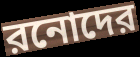
রনোদের